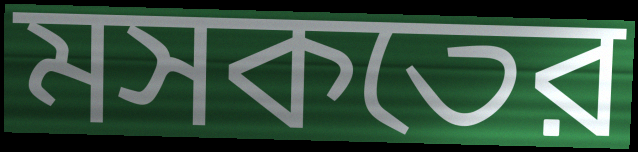
মসকতের